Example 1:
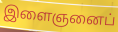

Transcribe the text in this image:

இளைஞனைப்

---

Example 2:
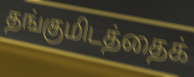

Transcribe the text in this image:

தங்குமிடத்தைக்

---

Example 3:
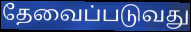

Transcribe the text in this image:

தேவைப்படுவது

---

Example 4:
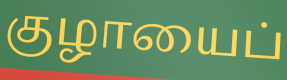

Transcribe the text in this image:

குழாயைப்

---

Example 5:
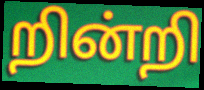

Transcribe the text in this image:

றின்றி